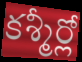
కశ్మీర్లో